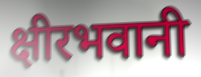
क्षीरभवानी